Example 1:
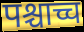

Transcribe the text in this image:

पश्चाच्च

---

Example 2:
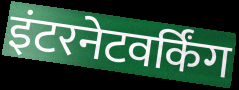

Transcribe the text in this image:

इंटरनेटवर्किंग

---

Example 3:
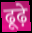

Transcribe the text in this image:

ढूढ़े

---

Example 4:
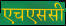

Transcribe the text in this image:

एचएससी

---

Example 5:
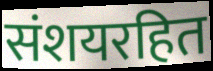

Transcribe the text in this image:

संशयरहित